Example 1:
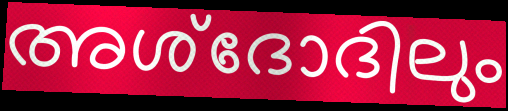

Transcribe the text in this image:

അശ്ദോദിലും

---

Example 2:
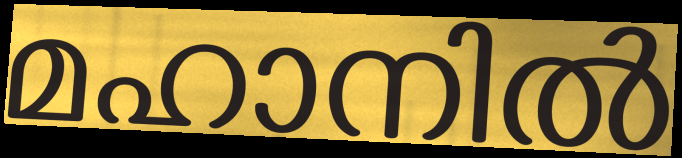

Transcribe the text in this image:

മഹാനിൽ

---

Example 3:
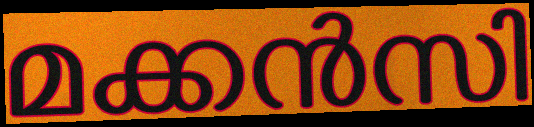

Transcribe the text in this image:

മക്കൻസി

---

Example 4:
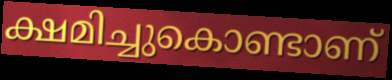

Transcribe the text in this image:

ക്ഷമിച്ചുകൊണ്ടാണ്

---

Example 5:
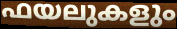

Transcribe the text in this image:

ഫയലുകളും